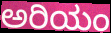
ಅರಿಯಂ